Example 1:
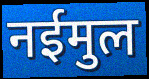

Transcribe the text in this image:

नईमुल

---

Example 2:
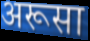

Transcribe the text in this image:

अरूसा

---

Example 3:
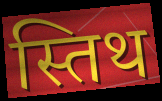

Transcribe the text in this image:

स्तिथ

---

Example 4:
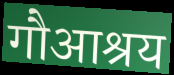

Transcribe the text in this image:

गौआश्रय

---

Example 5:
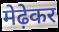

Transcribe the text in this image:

मेढ़ेकर